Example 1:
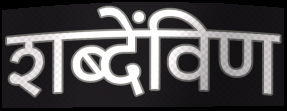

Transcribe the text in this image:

शब्देंविण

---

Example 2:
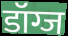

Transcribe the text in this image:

डॉग्ज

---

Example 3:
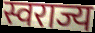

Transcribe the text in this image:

स्वराज्य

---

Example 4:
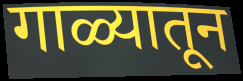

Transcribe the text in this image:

गाळ्यातून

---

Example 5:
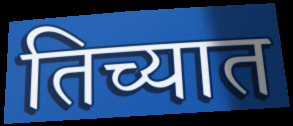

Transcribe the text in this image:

तिच्यात